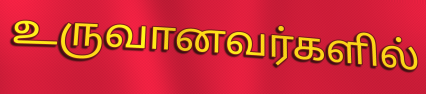
உருவானவர்களில்